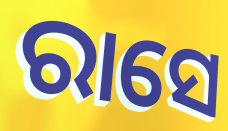
ରାସେ